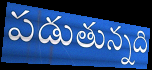
పడుతున్నది